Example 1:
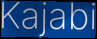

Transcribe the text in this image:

Kajabi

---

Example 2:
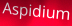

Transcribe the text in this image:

Aspidium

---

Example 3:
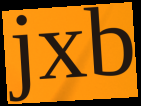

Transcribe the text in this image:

jxb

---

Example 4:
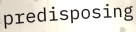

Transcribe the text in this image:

predisposing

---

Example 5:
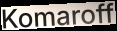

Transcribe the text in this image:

Komaroff